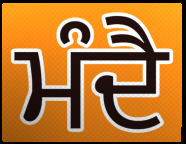
ਮੰਦੈ